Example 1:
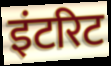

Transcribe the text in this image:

इंटरिट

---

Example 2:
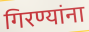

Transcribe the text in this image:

गिरण्यांना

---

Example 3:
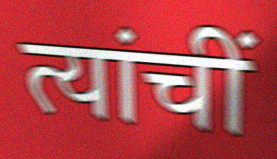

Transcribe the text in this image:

त्यांचीं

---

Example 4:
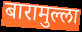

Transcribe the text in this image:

बारामुल्ला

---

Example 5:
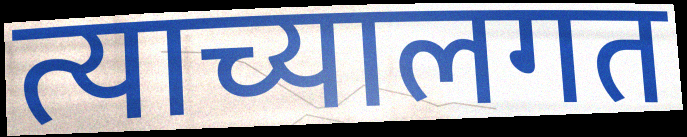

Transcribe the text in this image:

त्याच्यालगत